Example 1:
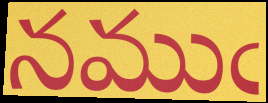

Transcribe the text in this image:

నముఁ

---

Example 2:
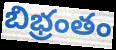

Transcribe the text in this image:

బిభ్రంతం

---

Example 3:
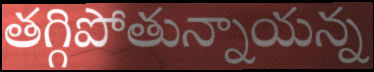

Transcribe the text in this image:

తగ్గిపోతున్నాయన్న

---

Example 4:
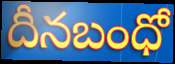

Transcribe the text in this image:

దీనబంధో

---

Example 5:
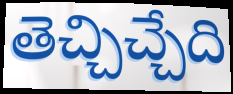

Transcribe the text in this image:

తెచ్చిచ్చేది